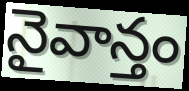
నైవాన్తం